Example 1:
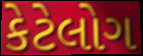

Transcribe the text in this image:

કેટેલોગ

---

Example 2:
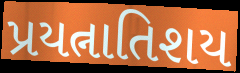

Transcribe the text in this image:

પ્રયત્નાતિશય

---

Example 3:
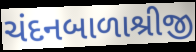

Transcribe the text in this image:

ચંદનબાળાશ્રીજી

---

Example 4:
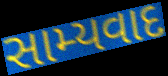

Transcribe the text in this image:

સામ્યવાદ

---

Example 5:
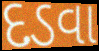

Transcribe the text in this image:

દડવા